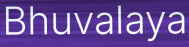
Bhuvalaya